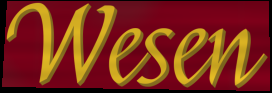
Wesen